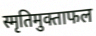
स्मृतिमुक्ताफल